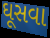
ઘૂસવા